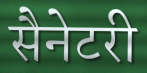
सैनेटरी